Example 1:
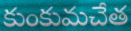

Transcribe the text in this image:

కుంకుమచేత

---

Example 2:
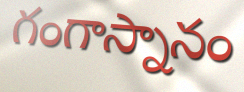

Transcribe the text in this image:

గంగాస్నానం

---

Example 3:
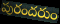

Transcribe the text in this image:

పురందరుం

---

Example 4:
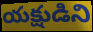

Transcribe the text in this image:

యక్షుడిని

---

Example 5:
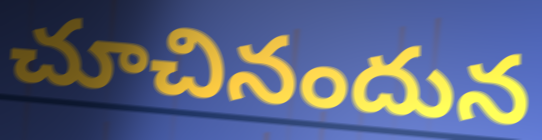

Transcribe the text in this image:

చూచినందున